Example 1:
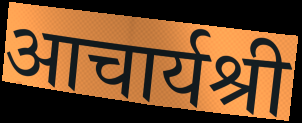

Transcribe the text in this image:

आचार्यश्री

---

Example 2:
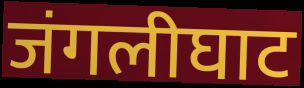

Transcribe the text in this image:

जंगलीघाट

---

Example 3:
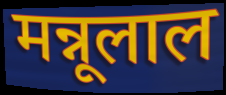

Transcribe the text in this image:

मन्नूलाल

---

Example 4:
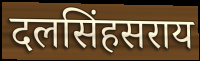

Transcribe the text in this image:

दलसिंहसराय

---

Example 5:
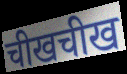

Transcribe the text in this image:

चीखचीख